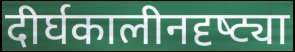
दीर्घकालीनदृष्ट्या